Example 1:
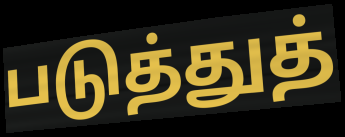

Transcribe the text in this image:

படுத்துத்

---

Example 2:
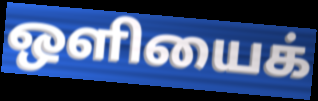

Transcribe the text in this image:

ஒளியைக்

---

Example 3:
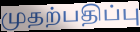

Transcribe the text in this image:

முதற்பதிப்பு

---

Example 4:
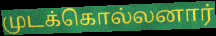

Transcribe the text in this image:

முடக்கொல்லனார்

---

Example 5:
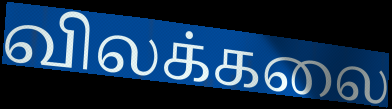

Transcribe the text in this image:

விலக்கலை